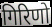
गिरिणो